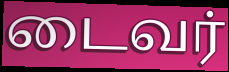
டைவர்